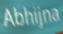
Abhijna